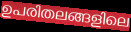
ഉപരിതലങ്ങളിലെ